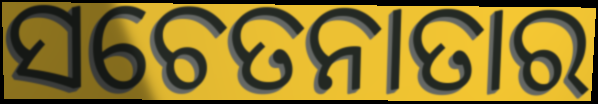
ସଚେତନାତାର